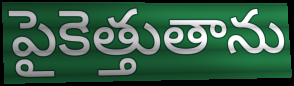
పైకెత్తుతాను